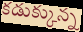
కడుక్కున్న